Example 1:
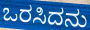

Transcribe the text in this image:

ಒರಸಿದನು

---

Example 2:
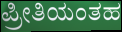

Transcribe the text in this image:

ಪ್ರೀತಿಯಂತಹ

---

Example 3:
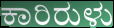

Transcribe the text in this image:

ಕಾರಿರುಳು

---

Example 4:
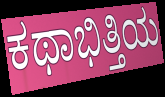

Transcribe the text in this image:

ಕಥಾಭಿತ್ತಿಯ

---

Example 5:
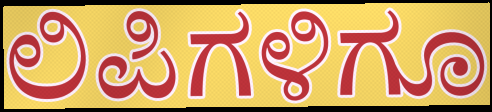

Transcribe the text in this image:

ಲಿಪಿಗಳಿಗೂ